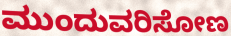
ಮುಂದುವರಿಸೋಣ